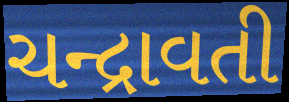
ચન્દ્રાવતી